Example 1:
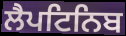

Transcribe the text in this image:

ਲੈਪਟਿਨਿਬ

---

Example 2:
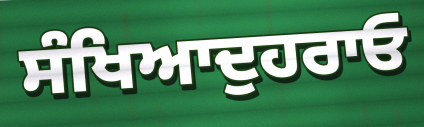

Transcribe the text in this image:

ਸੰਖਿਆਦੁਹਰਾਓ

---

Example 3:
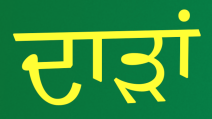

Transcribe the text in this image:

ਦਾੜਾਂ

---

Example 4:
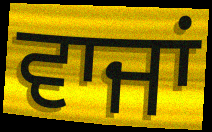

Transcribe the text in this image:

ਵਾਜਾਂ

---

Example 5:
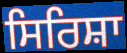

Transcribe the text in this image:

ਸਿਰਿਸ਼ਾ